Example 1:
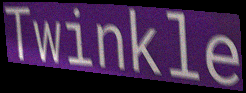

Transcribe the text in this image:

Twinkle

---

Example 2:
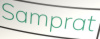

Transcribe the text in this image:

Samprat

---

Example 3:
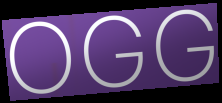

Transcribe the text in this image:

OGG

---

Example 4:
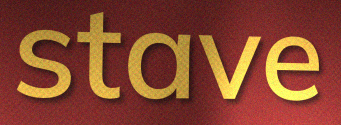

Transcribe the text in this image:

stave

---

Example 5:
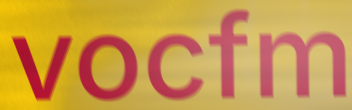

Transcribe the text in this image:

vocfm